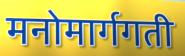
मनोमार्गगती